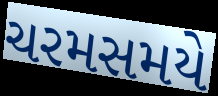
ચરમસમયે